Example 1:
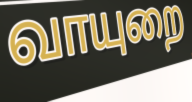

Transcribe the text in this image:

வாயுறை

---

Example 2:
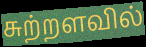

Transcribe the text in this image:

சுற்றளவில்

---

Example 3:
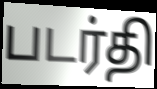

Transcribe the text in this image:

படர்தி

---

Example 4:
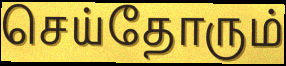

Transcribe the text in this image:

செய்தோரும்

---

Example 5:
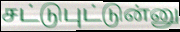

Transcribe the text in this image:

சட்டுபுட்டுன்னு